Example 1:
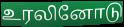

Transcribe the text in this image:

உரலினோடு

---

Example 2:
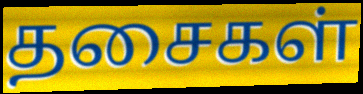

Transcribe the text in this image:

தசைகள்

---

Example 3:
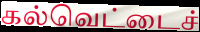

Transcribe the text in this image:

கல்வெட்டைச்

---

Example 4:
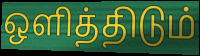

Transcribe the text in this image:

ஒளித்திடும்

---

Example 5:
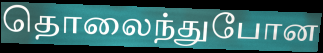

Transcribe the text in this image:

தொலைந்துபோன